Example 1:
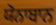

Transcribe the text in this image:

ਯੋਨਾਬਾਨ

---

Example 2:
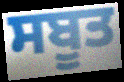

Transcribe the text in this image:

ਸਬੂਤ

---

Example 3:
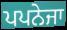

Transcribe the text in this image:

ਪਪਨੇਜਾ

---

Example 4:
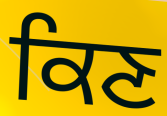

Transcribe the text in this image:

ਕਿਣ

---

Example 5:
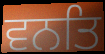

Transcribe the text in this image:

ਵਨਤਿ